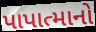
પાપાત્માનો